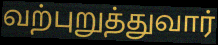
வற்புறுத்துவார்